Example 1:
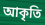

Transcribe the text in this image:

আকৃতি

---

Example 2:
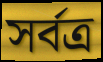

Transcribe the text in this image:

সর্বত্র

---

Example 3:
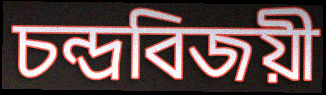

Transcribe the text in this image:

চন্দ্রবিজয়ী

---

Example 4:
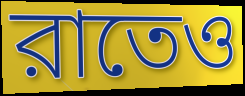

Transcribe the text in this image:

রাতেও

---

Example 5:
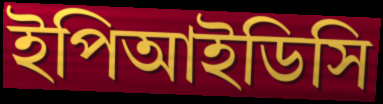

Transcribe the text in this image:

ইপিআইডিসি